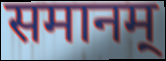
समानम्